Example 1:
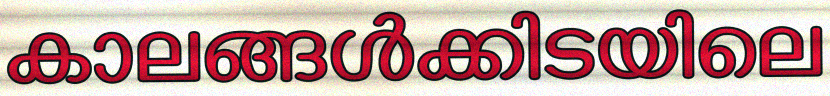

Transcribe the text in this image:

കാലങ്ങൾക്കിടയിലെ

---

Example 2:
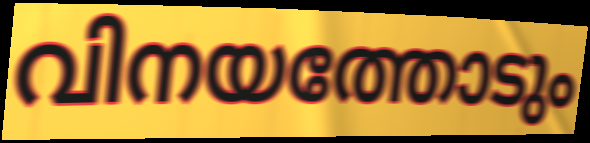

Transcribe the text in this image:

വിനയത്തോടും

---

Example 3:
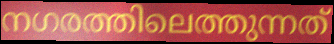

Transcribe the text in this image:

നഗരത്തിലെത്തുന്നത്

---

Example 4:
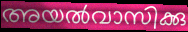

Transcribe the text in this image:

അയൽവാസിക്കു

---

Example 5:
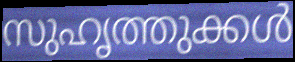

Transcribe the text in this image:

സുഹൃത്തുക്കൾ